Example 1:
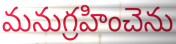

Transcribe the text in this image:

మనుగ్రహించెను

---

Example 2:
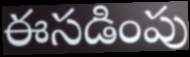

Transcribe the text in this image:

ఈసడింపు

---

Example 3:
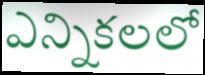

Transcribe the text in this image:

ఎన్నికలలో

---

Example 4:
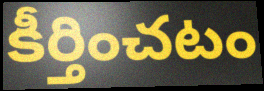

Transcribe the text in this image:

కీర్తించటం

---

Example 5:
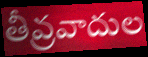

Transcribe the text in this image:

తీవ్రవాదుల